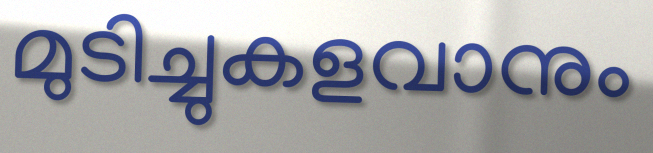
മുടിച്ചുകളവാനും